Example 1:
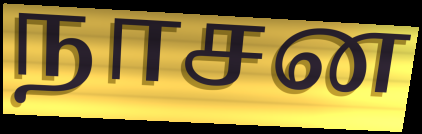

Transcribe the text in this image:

நாசன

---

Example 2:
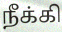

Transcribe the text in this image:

நீக்கி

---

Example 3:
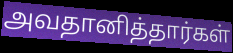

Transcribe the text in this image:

அவதானித்தார்கள்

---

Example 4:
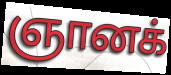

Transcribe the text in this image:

ஞானக்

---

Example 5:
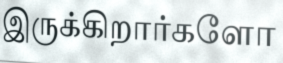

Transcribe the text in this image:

இருக்கிறார்களோ